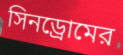
সিনড্রোমের